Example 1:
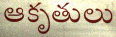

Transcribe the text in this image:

ఆకృతులు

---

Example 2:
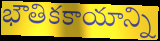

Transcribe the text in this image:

భౌతికకాయాన్ని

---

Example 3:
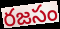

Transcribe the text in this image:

రజసం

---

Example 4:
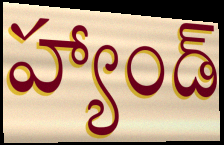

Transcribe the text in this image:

హ్యాండ్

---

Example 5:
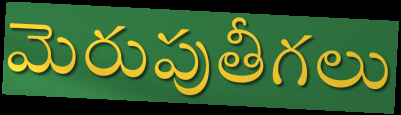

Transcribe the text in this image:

మెరుపుతీగలు